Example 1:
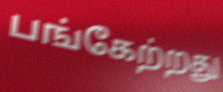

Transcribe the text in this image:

பங்கேற்றது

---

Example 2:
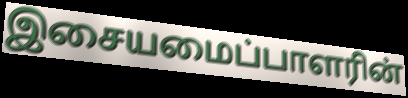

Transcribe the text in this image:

இசையமைப்பாளரின்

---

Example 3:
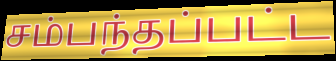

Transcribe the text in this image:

சம்பந்தப்பட்ட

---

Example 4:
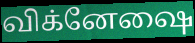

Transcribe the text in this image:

விக்னேஷை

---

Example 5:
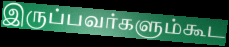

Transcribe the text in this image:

இருப்பவர்களும்கூட